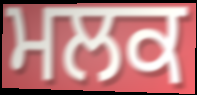
ਮਲਕ